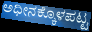
ಅಧೀನಕ್ಕೊಳಪಟ್ಟ